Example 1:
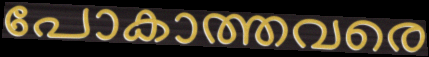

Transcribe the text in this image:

പോകാത്തവരെ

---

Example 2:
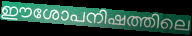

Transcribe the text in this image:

ഈശോപനിഷത്തിലെ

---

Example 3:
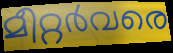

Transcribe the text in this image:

മീറ്റർവരെ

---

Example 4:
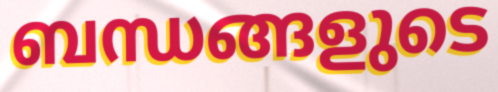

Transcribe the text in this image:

ബന്ധങ്ങളുടെ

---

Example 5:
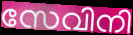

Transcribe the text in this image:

സേവിനി